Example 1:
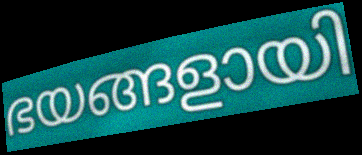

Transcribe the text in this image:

ഭയങ്ങളായി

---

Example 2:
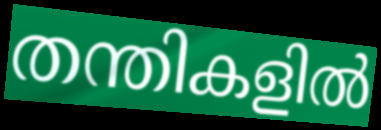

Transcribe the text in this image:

തന്തികളിൽ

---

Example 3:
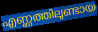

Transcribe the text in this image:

എണ്ണത്തിലുണ്ടായ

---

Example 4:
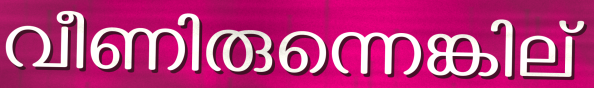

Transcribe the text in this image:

വീണിരുന്നെങ്കില്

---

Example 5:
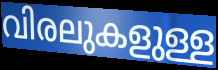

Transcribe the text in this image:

വിരലുകളുള്ള